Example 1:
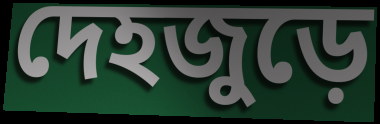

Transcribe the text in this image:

দেহজুড়ে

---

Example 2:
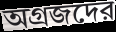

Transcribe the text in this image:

অগ্রজদের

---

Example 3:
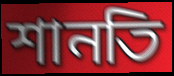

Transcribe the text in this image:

শানতি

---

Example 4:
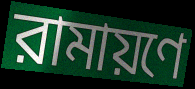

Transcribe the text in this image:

রামায়ণে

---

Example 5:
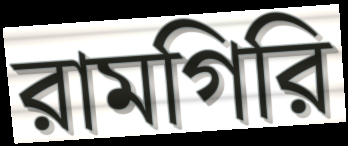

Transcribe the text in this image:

রামগিরি